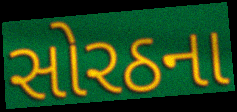
સોરઠના